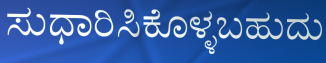
ಸುಧಾರಿಸಿಕೊಳ್ಳಬಹುದು